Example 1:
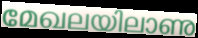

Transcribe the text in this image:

മേഖലയിലാണു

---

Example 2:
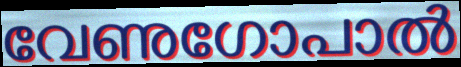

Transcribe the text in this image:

വേണുഗോപാൽ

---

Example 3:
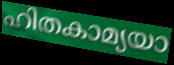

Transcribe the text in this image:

ഹിതകാമ്യയാ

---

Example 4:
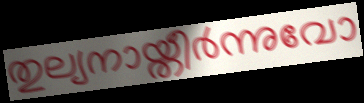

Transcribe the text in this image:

തുല്യനായ്തീർന്നുവോ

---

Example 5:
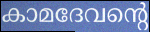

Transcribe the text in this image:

കാമദേവന്റെ